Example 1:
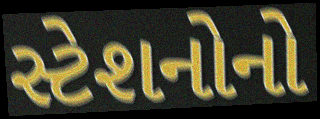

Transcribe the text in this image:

સ્ટેશનોનો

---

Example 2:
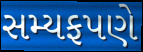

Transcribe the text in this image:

સમ્યફપણે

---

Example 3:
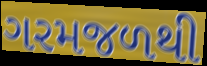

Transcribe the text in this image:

ગરમજળથી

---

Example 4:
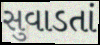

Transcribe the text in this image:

સુવાડતાં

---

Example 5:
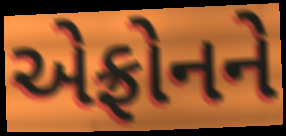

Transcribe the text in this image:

એફ્રોનને